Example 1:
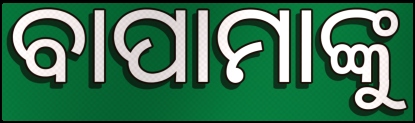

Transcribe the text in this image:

ବାପାମାଙ୍କୁ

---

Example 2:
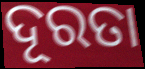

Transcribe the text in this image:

ଦୂରତା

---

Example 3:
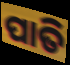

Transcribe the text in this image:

ପାତି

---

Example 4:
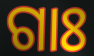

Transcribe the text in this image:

ଗାଃ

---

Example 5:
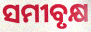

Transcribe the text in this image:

ସମୀବୃକ୍ଷ